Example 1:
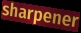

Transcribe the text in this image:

sharpener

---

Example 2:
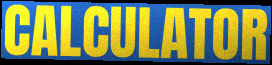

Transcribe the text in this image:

CALCULATOR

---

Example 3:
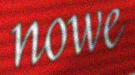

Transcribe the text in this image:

nowe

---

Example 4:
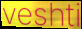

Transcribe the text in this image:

veshti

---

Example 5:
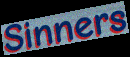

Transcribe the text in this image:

Sinners